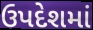
ઉપદેશમાં